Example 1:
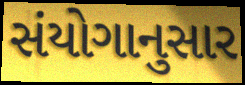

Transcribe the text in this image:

સંયોગાનુસાર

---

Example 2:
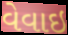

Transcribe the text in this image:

વેવાઇ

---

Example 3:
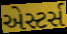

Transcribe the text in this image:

એસ્ટર્સ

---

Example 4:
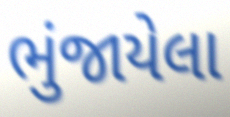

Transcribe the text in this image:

ભુંજાયેલા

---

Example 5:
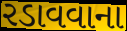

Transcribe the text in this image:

રડાવવાના